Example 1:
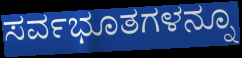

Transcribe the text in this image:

ಸರ್ವಭೂತಗಳನ್ನೂ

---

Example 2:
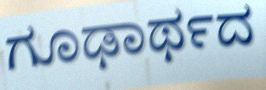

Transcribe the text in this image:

ಗೂಢಾರ್ಥದ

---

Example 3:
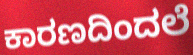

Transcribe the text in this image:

ಕಾರಣದಿಂದಲೆ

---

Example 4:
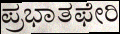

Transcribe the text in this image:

ಪ್ರಭಾತಫೇರಿ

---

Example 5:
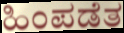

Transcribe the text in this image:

ಹಿಂಪಡೆತ